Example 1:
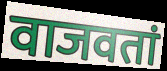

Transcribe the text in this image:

वाजवतां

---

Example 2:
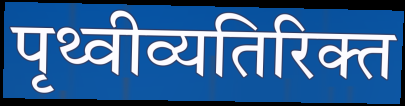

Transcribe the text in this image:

पृथ्वीव्यतिरिक्त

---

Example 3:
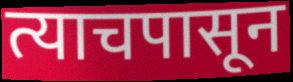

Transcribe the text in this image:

त्याचपासून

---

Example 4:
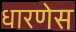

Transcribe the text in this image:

धारणेस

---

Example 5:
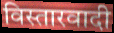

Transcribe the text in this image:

विस्तारवादी